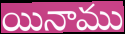
యినాము